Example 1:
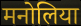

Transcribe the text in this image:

मनोलिया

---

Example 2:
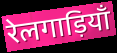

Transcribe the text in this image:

रेलगाड़ियाँ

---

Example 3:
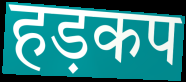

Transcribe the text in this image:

हड़कप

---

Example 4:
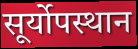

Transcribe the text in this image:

सूर्योपस्थान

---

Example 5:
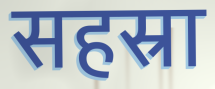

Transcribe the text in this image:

सहस्रा